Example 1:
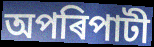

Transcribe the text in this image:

অপৰিপাটী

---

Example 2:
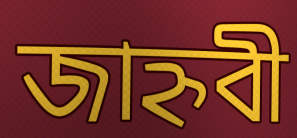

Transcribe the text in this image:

জাহ্নবী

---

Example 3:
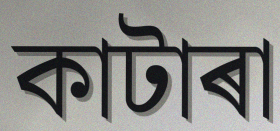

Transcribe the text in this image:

কাটাৰা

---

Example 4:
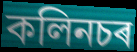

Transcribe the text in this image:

কলিনচৰ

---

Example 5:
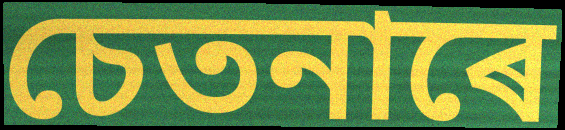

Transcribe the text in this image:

চেতনাৰে